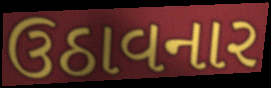
ઉઠાવનાર